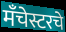
मँचेस्टरचे